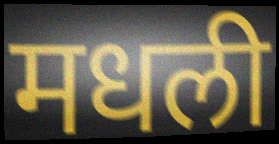
मधली